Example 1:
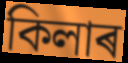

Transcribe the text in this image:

কিলাৰ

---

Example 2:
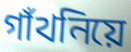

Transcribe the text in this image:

গাঁথনিয়ে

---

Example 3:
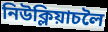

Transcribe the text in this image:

নিউক্লিয়াচলৈ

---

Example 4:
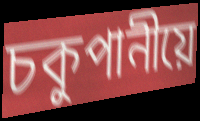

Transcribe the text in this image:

চকুপানীয়ে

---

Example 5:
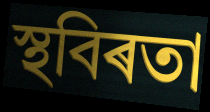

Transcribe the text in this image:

স্থবিৰতা